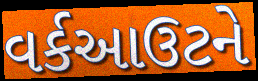
વર્કઆઉટને